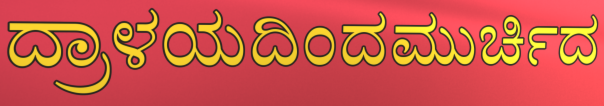
ದ್ರಾಳಯದಿಂದಮುರ್ಚಿದ